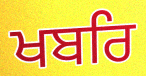
ਖਬਰਿ